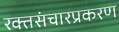
रक्तसंचारप्रकरण